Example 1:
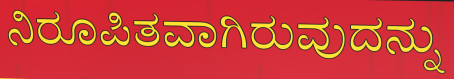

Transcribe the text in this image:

ನಿರೂಪಿತವಾಗಿರುವುದನ್ನು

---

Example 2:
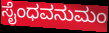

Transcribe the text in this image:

ಸೈಂಧವನುಮಂ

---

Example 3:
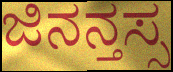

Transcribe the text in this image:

ಜಿನನ್ತಸ್ಸ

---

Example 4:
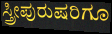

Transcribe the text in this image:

ಸ್ತ್ರೀಪುರುಷರಿಗೂ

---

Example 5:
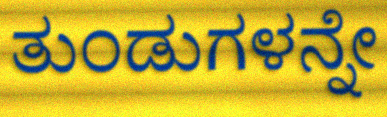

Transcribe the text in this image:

ತುಂಡುಗಳನ್ನೇ